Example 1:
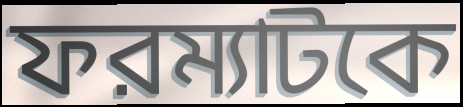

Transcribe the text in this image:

ফরম্যাটকে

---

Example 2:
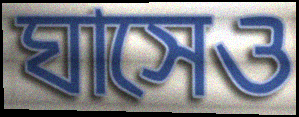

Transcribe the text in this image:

ঘাসেও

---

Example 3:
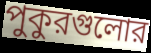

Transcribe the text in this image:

পুকুরগুলোর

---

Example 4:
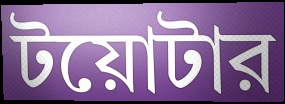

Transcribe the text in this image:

টয়োটার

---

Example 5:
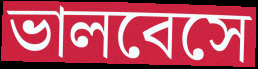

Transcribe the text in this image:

ভালবেসে